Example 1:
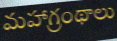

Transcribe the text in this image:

మహాగ్రంథాలు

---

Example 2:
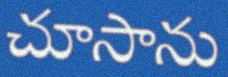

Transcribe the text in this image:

చూసాను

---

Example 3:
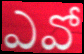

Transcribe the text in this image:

ఎవో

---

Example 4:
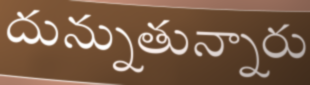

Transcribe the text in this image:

దున్నుతున్నారు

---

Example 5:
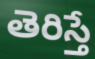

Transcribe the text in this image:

తెరిస్తే